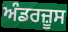
ਅੰਡਰਜ਼ੂਸ